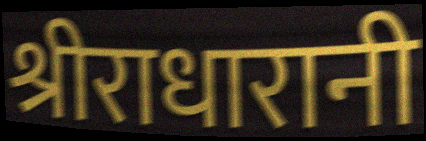
श्रीराधारानी